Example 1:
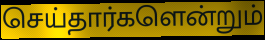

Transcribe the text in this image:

செய்தார்களென்றும்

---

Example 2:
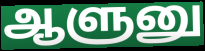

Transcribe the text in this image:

ஆளுனு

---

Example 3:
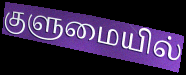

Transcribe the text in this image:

குளுமையில்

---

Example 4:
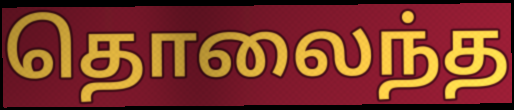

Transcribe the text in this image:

தொலைந்த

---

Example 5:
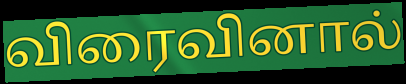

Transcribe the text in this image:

விரைவினால்